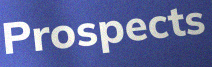
Prospects